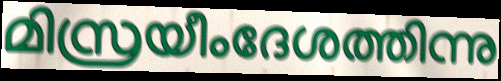
മിസ്രയീംദേശത്തിന്നു